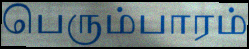
பெரும்பாரம்